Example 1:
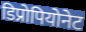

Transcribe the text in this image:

डिप्रोपियोनेट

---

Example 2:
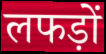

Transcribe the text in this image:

लफड़ों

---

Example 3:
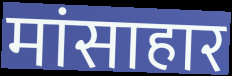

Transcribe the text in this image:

मांसाहार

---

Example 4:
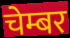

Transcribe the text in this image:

चेम्बर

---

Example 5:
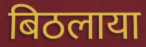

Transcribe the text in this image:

बिठलाया